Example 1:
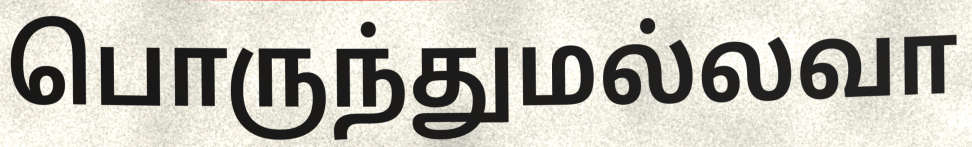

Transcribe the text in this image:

பொருந்துமல்லவா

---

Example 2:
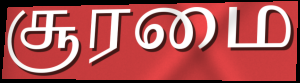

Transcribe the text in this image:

சூரமை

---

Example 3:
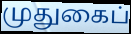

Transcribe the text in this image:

முதுகைப்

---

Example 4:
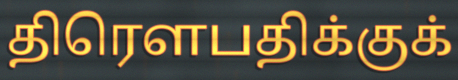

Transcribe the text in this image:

திரௌபதிக்குக்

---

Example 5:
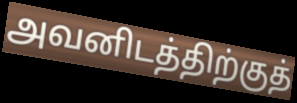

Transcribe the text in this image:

அவனிடத்திற்குத்